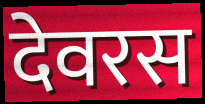
देवरस